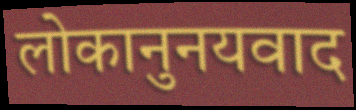
लोकानुनयवाद